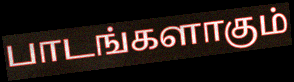
பாடங்களாகும்